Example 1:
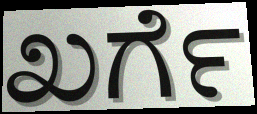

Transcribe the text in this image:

ಖರ್ಗೆ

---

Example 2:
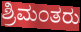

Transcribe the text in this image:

ಶ್ರಿಮಂತರು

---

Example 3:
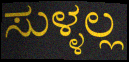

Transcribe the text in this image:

ಸುಳ್ಳಲ್ಲ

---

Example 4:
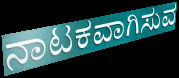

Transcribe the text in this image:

ನಾಟಕವಾಗಿಸುವ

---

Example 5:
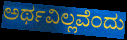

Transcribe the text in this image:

ಅರ್ಥವಿಲ್ಲವೆಂದು